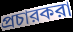
প্রচারকরা